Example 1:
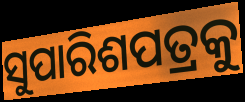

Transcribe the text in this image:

ସୁପାରିଶପତ୍ରକୁ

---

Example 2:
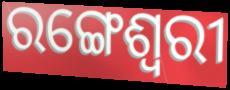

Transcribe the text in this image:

ରଙ୍ଗେଶ୍ୱରୀ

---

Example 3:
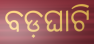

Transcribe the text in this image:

ବଡ଼ଘାଟି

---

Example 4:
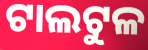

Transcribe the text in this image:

ଟାଲଟୁଳ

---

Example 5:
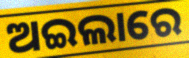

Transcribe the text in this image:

ଅଇଲାରେ